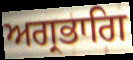
ਅਗ੍ਰਭਾਗਿ